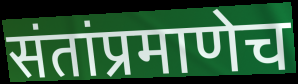
संतांप्रमाणेच